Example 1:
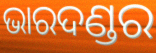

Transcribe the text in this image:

ଭାରଦଣ୍ଡର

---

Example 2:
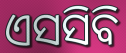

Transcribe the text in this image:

ଏସସିବି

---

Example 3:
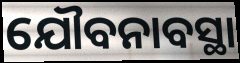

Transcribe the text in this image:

ଯୌବନାବସ୍ଥା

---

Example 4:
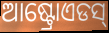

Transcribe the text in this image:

ଆଷ୍ଟ୍ରୋଏଡସ୍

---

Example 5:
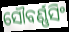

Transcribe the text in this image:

ସୌବର୍ଣ୍ଣସିଂ